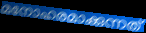
മനോഹരമാക്കുന്നത്